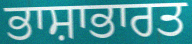
ਭਾਸ਼ਾਭਾਰਤ